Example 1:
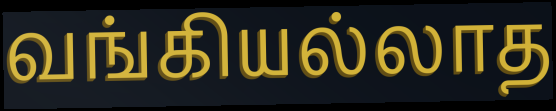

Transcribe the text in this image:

வங்கியல்லாத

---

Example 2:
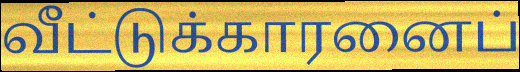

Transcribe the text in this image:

வீட்டுக்காரனைப்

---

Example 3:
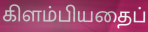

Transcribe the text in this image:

கிளம்பியதைப்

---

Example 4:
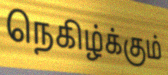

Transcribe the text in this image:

நெகிழ்க்கும்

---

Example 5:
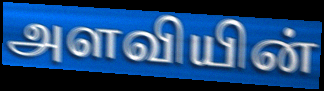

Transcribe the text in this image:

அளவியின்